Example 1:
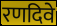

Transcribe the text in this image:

रणदिवे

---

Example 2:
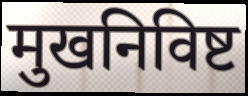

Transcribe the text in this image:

मुखनिविष्ट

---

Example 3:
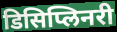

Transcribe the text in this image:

डिसिप्लिनरी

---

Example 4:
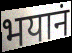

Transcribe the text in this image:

भयानं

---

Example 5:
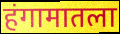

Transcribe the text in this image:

हंगामातला